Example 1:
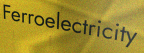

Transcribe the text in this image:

Ferroelectricity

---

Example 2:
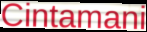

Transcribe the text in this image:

Cintamani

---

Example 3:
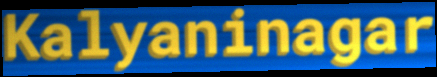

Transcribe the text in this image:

Kalyaninagar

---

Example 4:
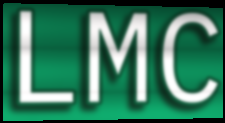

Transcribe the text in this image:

LMC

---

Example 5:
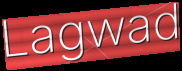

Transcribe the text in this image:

Lagwad